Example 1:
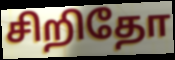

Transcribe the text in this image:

சிறிதோ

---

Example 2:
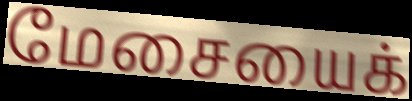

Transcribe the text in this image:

மேசையைக்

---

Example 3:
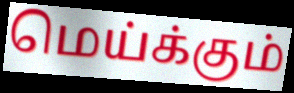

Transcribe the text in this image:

மெய்க்கும்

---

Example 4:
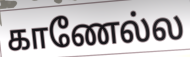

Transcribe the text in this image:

காணேல்ல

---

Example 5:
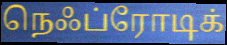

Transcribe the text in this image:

நெஃப்ரோடிக்